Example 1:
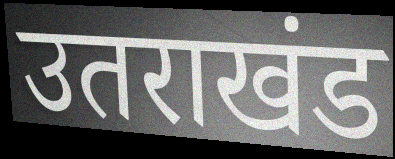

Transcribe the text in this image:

उतराखंड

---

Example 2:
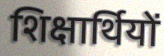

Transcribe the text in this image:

शिक्षार्थियों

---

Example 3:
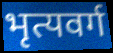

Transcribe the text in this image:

भृत्यवर्ग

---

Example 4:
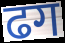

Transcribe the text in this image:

ढग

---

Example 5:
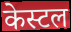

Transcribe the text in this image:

केस्टल